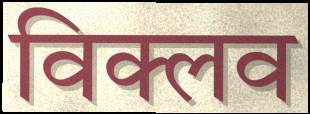
विक्लव